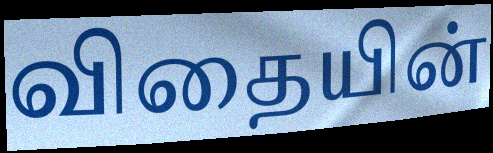
விதையின்